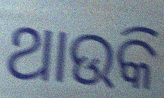
ଥାଉକି